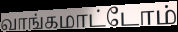
வாங்கமாட்டோம்